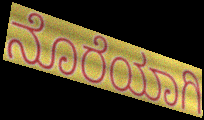
ನೊರೆಯಾಗಿ